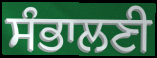
ਸੰਭਾਲਣੀ